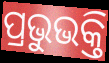
ପ୍ରଭୁଭକ୍ତି